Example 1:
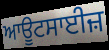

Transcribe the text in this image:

ਆਊਟਸਾਈਜ਼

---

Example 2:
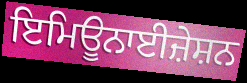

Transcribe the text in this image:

ਇਮਿਊਨਾਈਜ਼ੇਸ਼ਨ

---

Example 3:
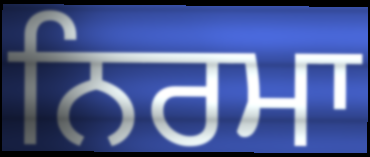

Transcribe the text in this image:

ਨਿਰਮਾ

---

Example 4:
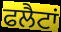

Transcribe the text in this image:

ਫਲੈਟਾਂ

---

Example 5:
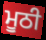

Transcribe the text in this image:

ਮੂਠੀ